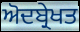
ਅੋਦਬ੍ਰੇਖਤ